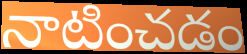
నాటించడం